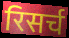
रिसर्च